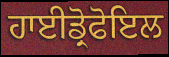
ਹਾਈਡ੍ਰੋਫੋਇਲ